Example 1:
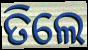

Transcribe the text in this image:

ତିଲେ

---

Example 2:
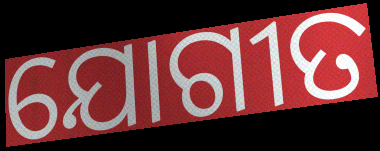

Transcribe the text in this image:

ଯୋଗୀତ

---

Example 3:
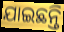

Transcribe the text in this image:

ଯାଇଛନ୍ତି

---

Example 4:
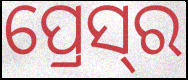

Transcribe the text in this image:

ପ୍ରେସ୍‌ର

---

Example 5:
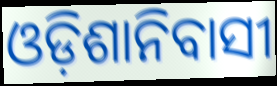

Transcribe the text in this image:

ଓଡ଼ିଶାନିବାସୀ